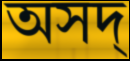
অসদ্